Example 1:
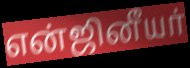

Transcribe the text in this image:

என்ஜினீயர்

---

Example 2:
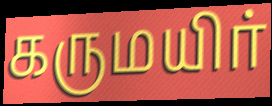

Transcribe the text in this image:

கருமயிர்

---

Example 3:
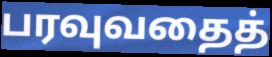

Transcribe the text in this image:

பரவுவதைத்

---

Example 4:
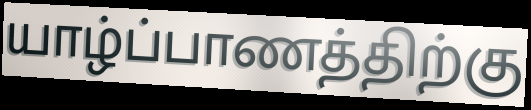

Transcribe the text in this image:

யாழ்ப்பாணத்திற்கு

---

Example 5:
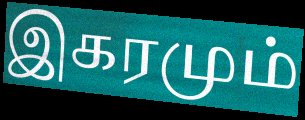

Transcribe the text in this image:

இகரமும்